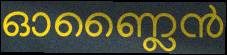
ഓണ്ലൈൻ